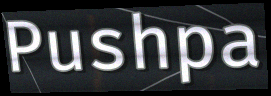
Pushpa